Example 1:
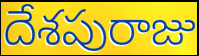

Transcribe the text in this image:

దేశపురాజు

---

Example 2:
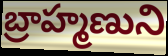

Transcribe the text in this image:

బ్రాహ్మణుని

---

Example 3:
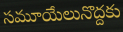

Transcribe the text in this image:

సమూయేలునొద్దకు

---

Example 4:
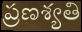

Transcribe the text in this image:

ప్రణశ్యతి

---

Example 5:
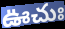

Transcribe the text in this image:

ఊచుః